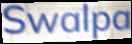
Swalpa